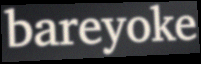
bareyoke